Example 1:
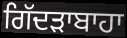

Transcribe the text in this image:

ਗਿੱਦੜਾਬਾਹਾ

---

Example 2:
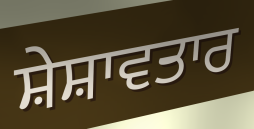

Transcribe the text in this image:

ਸ਼ੇਸ਼ਾਵਤਾਰ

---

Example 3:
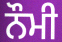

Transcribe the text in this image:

ਨੌਮੀ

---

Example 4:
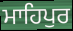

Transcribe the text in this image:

ਮਾਹਿਪੁਰ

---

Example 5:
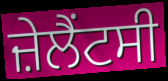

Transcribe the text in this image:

ਜ਼ੇਲੈਂਟਸੀ